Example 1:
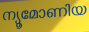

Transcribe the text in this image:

ന്യൂമോണിയ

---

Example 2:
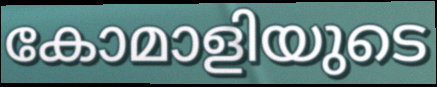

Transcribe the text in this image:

കോമാളിയുടെ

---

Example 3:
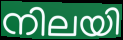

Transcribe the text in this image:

നിലയി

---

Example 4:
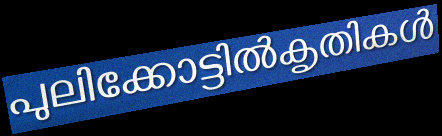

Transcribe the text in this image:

പുലിക്കോട്ടിൽകൃതികൾ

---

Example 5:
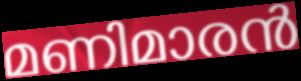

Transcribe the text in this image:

മണിമാരൻ